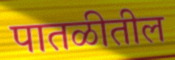
पातळीतील